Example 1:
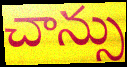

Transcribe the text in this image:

చాన్సు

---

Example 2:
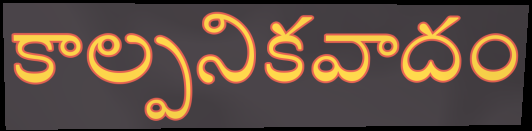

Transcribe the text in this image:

కాల్పనికవాదం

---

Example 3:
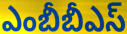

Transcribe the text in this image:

ఎంబీబీఎస్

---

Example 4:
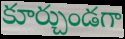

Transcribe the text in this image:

కూర్చుండగా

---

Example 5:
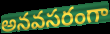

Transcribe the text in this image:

అనవసరంగా